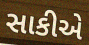
સાકીએ